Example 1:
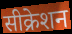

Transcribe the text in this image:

सीक्रेशन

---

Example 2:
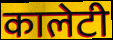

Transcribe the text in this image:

कालेटी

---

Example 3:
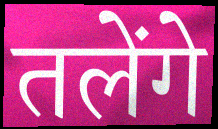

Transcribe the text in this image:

तलेंगे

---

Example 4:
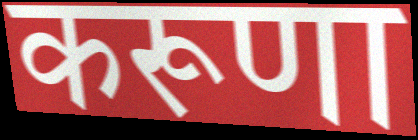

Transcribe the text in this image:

करूणा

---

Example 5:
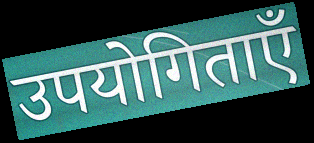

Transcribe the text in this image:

उपयोगिताएँ